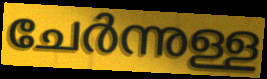
ചേർന്നുള്ള